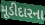
મૂડીદારના